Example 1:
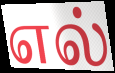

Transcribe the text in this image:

எல்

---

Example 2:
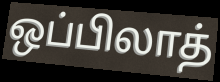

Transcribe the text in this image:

ஒப்பிலாத்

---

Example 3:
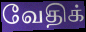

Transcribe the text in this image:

வேதிக்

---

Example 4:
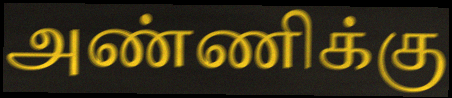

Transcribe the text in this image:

அண்ணிக்கு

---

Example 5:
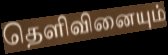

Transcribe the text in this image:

தெளிவினையும்